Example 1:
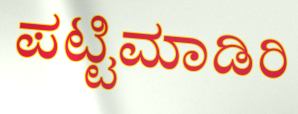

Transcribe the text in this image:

ಪಟ್ಟಿಮಾಡಿರಿ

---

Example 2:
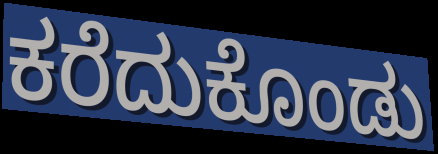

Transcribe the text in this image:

ಕರೆದುಕೊಂಡು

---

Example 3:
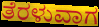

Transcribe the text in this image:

ತೆರಳುವಾಗ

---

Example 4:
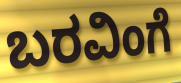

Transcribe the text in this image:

ಬರವಿಂಗೆ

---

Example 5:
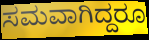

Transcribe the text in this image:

ಸಮವಾಗಿದ್ದರೂ